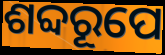
ଶବ୍ଦରୂପେ